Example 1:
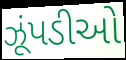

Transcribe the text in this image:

ઝૂંપડીઓ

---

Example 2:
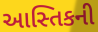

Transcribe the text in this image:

આસ્તિકની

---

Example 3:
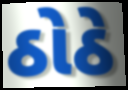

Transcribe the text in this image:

ઠોઠે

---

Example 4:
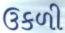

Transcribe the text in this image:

ઉકળી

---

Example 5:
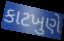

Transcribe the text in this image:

કાટખુણે